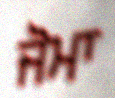
ਜੋਮਾ